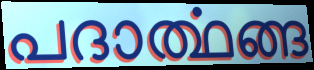
പദാൎത്ഥങ്ങ